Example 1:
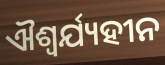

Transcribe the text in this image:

ଐଶ୍ଵର୍ଯ୍ୟହୀନ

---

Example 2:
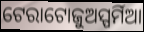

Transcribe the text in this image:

ଟେରାଟୋଜୁଅସ୍ପର୍ମିଆ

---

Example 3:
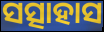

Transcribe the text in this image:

ସତ୍ସାହାସ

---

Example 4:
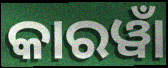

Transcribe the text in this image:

କାରୱାଁ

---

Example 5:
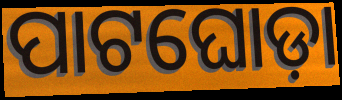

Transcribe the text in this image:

ପାଟଘୋଡ଼ା